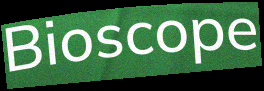
Bioscope